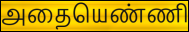
அதையெண்ணி